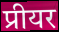
प्रीयर